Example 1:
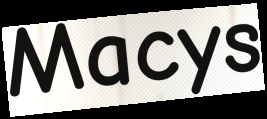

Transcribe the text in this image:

Macys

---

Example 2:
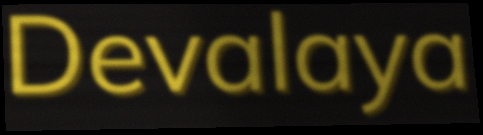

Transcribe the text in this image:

Devalaya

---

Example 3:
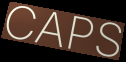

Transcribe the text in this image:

CAPS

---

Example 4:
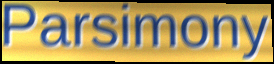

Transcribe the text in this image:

Parsimony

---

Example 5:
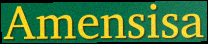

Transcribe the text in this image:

Amensisa